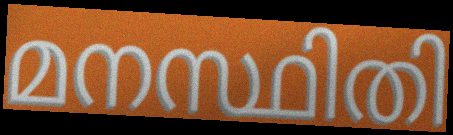
മനസ്ഥിതി